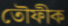
তৌফীক